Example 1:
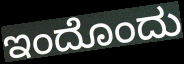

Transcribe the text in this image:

ಇಂದೊಂದು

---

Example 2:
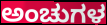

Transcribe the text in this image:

ಅಂಚುಗಳ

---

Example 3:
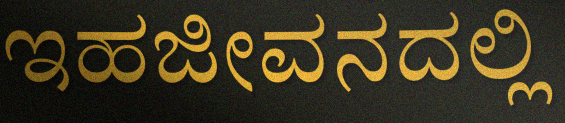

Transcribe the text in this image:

ಇಹಜೀವನದಲ್ಲಿ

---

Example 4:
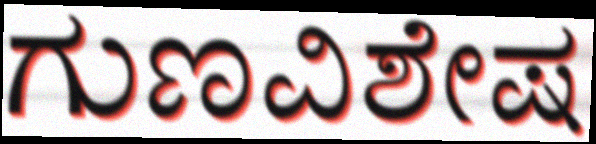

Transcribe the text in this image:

ಗುಣವಿಶೇಷ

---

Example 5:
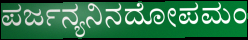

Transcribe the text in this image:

ಪರ್ಜನ್ಯನಿನದೋಪಮಂ